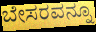
ಬೇಸರವನ್ನೂ